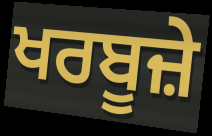
ਖਰਬੂਜ਼ੇ